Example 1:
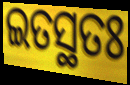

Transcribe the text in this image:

ଇତସ୍ଥତଃ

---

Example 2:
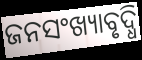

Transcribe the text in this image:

ଜନସଂଖ୍ୟାବୃଦ୍ଧି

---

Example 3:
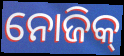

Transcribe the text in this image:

ନୋଜିକ୍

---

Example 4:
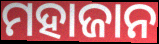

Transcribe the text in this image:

ମହାଜାନ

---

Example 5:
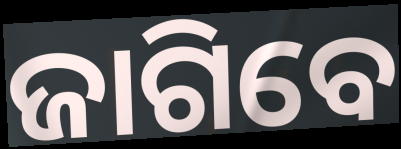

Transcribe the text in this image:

ଜାଗିବେ